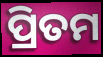
ପ୍ରିତମ